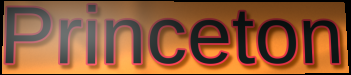
Princeton